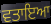
ਵਤਾਇਆ